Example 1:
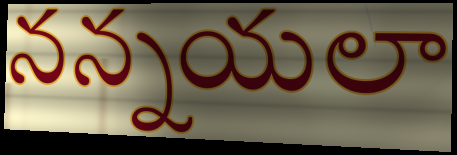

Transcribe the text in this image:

నన్నయలా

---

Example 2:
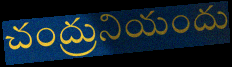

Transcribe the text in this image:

చంద్రునియందు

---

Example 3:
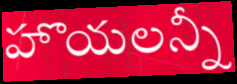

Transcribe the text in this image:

హొయలన్నీ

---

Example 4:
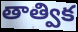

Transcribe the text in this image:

తాత్విక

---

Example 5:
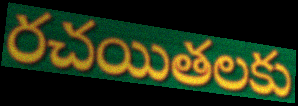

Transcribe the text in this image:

రచయితలకు